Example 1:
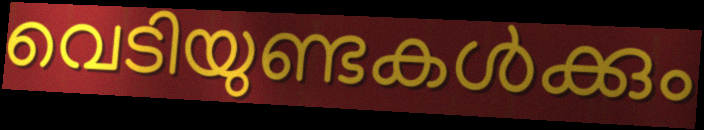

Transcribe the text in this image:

വെടിയുണ്ടകൾക്കും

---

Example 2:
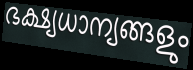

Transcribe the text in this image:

ഭക്ഷ്യധാന്യങ്ങളും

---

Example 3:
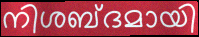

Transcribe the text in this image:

നിശബ്ദമായി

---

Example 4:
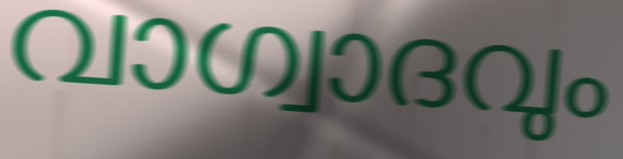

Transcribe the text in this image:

വാഗ്വാദവും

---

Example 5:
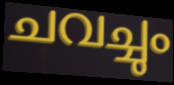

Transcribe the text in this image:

ചവച്ചും